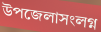
উপজেলাসংলগ্ন